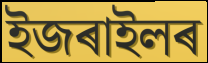
ইজৰাইলৰ